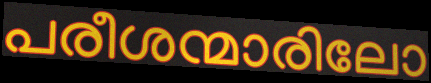
പരീശന്മാരിലോ